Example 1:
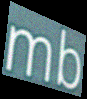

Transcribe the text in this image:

mb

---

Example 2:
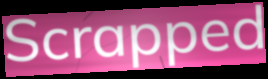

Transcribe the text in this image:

Scrapped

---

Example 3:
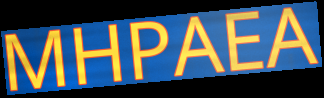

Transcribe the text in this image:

MHPAEA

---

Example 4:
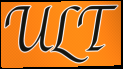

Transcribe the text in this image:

ULT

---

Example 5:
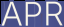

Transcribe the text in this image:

APR